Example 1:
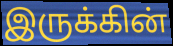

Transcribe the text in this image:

இருக்கின்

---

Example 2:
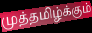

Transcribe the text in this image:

முத்தமிழ்க்கும்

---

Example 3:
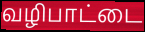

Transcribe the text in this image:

வழிபாட்டை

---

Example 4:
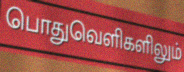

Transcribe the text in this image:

பொதுவெளிகளிலும்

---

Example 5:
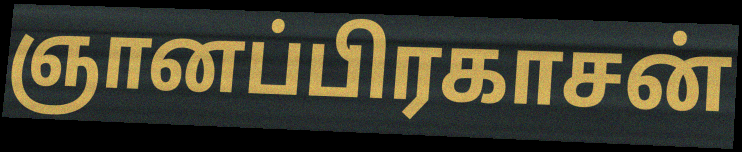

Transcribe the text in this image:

ஞானப்பிரகாசன்